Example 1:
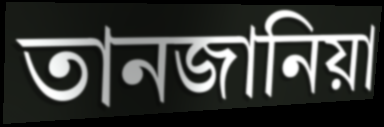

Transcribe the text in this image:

তানজানিয়া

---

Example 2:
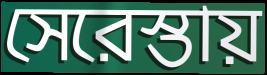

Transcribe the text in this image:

সেরেস্তায়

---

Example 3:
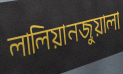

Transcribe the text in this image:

লালিয়ানজুয়ালা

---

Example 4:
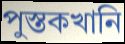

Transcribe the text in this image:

পুস্তকখানি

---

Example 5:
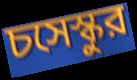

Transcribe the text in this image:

চসেস্কুর